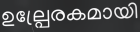
ഉല്പ്രേരകമായി